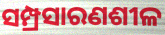
ସମ୍ପ୍ରସାରଣଶୀଳ